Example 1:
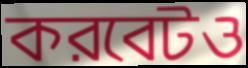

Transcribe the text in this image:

করবেটও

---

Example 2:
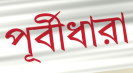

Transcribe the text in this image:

পূর্বীধারা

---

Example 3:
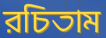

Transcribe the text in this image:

রচিতাম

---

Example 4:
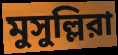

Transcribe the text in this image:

মুসুল্লিরা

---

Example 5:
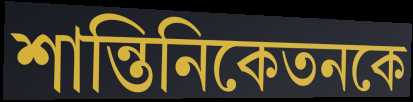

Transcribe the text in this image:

শান্তিনিকেতনকে